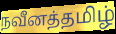
நவீனத்தமிழ்